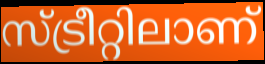
സ്ട്രീറ്റിലാണ്